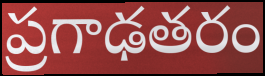
ప్రగాఢతరం